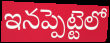
ఇనప్పెట్టెలో